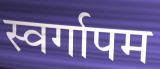
स्वर्गापम